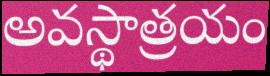
అవస్థాత్రయం